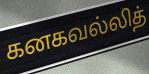
கனகவல்லித்